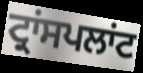
ਟ੍ਰਾਂਸਪਲਾਂਟ